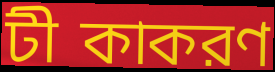
টীকাকরণ